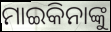
ମାଇକିନାଙ୍କୁ